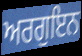
ਅਰਗੁਇਨ